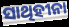
ସାଥିହୀନା